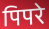
पिपरे